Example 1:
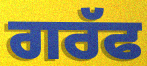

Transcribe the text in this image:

ਗਰੱਫ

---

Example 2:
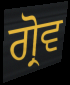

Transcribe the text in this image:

ਗ੍ਰੋਵ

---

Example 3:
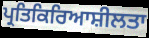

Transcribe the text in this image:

ਪ੍ਰਤਿਕਿਰਿਆਸ਼ੀਲਤਾ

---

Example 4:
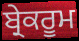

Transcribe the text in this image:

ਬ੍ਰੇਕਰੂਮ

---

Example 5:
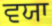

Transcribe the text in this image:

ਵਯਾ